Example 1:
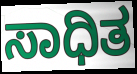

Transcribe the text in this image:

ಸಾಧಿತ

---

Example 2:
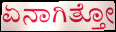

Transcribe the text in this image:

ಏನಾಗಿತ್ತೋ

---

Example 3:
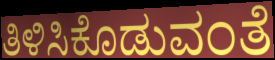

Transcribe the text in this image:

ತಿಳಿಸಿಕೊಡುವಂತೆ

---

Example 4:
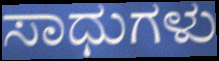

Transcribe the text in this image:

ಸಾಧುಗಳು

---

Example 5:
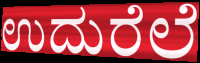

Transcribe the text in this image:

ಉದುರೆಲೆ